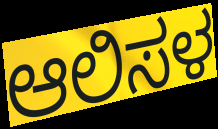
ಆಲಿಸಳ